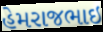
હેમરાજભાઇ